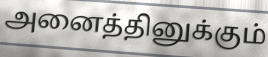
அனைத்தினுக்கும்